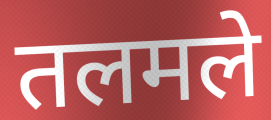
तलमले